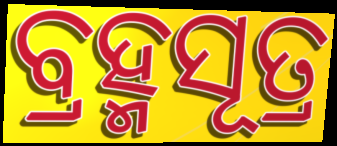
ବ୍ରହ୍ମସୂତ୍ର